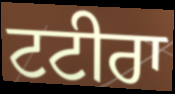
ਟਟੀਰਾ